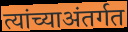
त्यांच्याअंतर्गत